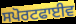
ਸਪੋਰਟਫਾਈਵ